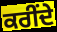
ਕਰੀਂਦੇ